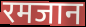
रमजान